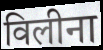
विलीना